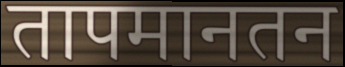
तापमानतन